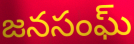
జనసంఘ్